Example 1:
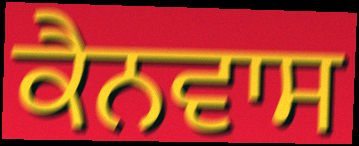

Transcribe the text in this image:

ਕੈਨਵਾਸ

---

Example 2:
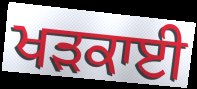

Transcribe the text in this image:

ਖੜਕਾਈ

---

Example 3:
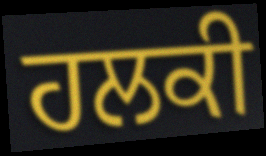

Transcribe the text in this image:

ਹਲਕੀ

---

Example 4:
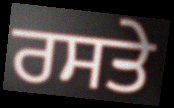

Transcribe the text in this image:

ਰਸਤੇ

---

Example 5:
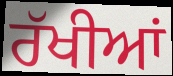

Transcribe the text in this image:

ਰੱਖੀਆਂ